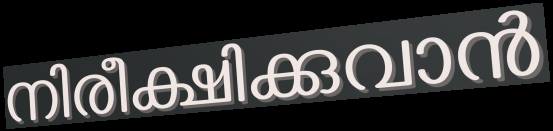
നിരീക്ഷിക്കുവാൻ